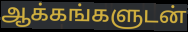
ஆக்கங்களுடன்